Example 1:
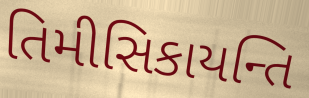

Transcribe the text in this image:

તિમીસિકાયન્તિ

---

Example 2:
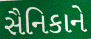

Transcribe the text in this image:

સૈનિકાને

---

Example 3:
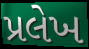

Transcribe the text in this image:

પ્રલેખ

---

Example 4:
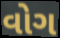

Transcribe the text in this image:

વોગ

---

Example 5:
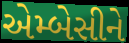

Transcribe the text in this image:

એમ્બેસીને